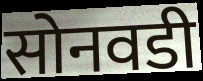
सोनवडी